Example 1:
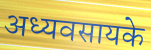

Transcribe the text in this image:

अध्यवसायके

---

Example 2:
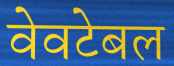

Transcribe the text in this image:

वेवटेबल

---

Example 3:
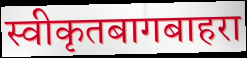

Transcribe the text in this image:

स्वीकृतबागबाहरा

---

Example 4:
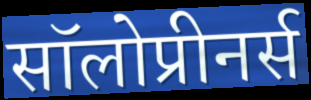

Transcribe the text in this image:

सॉलोप्रीनर्स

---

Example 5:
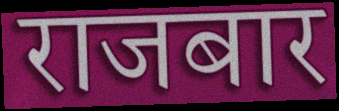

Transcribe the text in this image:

राजबार